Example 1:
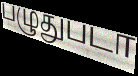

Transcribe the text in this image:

பழுதுபடா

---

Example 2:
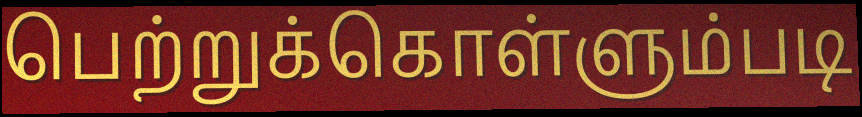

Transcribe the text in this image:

பெற்றுக்கொள்ளும்படி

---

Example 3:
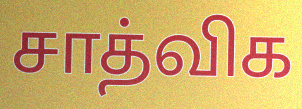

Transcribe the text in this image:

சாத்விக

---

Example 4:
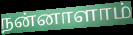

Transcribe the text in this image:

நன்னாளாம்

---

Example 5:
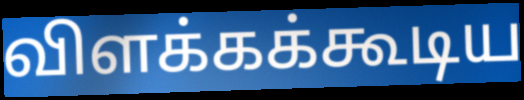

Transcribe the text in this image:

விளக்கக்கூடிய